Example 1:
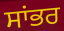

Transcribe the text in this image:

ਸਾਂਭਰ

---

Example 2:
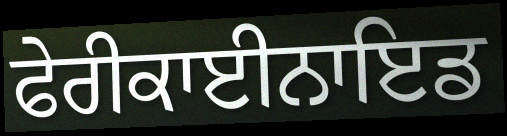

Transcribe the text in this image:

ਫੇਰੀਕਾਈਨਾਇਡ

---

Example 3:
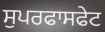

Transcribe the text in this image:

ਸੁਪਰਫਾਸਫੇਟ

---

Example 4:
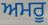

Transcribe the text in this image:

ਅਮਰੂ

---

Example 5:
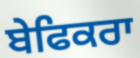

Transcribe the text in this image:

ਬੇਫਿਕਰਾ